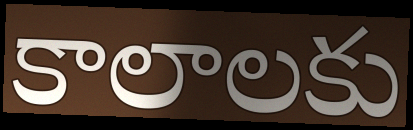
కాలాలకు